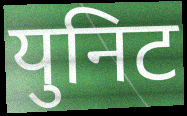
युनिट